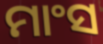
ମାଂସ